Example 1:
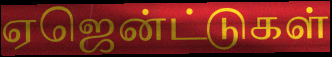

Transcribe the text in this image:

ஏஜென்ட்டுகள்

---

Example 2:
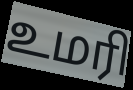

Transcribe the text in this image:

உமரி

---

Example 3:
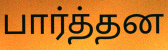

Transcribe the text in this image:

பார்த்தன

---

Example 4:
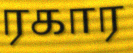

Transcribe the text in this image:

ரகார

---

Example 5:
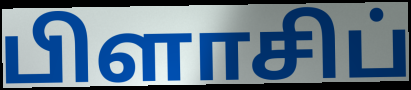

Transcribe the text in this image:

பிளாசிப்